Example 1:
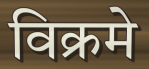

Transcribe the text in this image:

विक्रमे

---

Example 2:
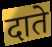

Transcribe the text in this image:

दाते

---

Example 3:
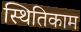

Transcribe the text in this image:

स्थितिकाम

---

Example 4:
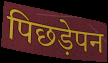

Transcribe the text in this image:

पिछड़ेपन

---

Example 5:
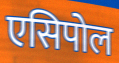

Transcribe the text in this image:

एसिपोल